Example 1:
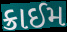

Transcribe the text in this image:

ક્રાઈમ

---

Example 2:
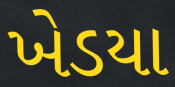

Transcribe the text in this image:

ખેડયા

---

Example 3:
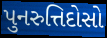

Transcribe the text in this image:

પુનરુત્તિદોસો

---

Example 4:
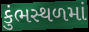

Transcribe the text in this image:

કુંભસ્થળમાં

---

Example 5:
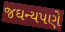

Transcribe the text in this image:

જઘન્યપણે